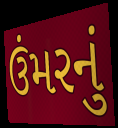
ઉંમરનું